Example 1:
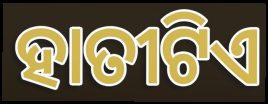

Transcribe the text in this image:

ହାତୀଟିଏ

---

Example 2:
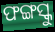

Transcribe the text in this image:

ଫଙ୍ଗସ୍କୁ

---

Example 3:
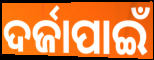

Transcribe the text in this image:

ଦର୍ଜାପାଇଁ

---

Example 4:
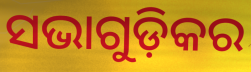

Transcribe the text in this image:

ସଭାଗୁଡ଼ିକର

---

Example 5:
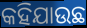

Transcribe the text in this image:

କହିଯାଉଛ